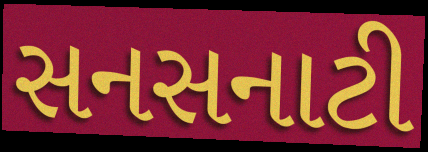
સનસનાટી